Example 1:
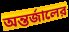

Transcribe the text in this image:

অন্তর্জালের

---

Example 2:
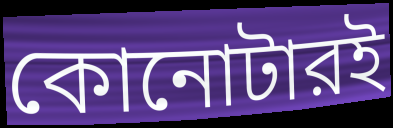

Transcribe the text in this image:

কোনোটারই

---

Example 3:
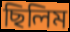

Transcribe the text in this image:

ছিলিম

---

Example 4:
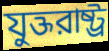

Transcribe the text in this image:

যুক্তরাষ্ট্র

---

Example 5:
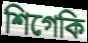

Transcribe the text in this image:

শিগেকি